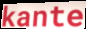
kante